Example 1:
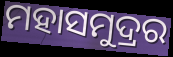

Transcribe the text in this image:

ମହାସମୁଦ୍ରର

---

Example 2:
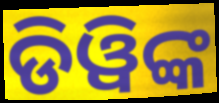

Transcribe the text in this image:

ଡିୱିଙ୍କ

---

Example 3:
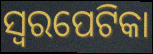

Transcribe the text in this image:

ସ୍ୱରପେଟିକା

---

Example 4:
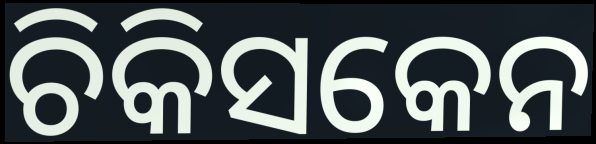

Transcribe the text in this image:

ଚିକିସକେନ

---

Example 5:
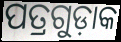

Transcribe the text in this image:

ପତ୍ରଗୁଡ଼ାକ